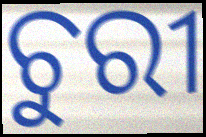
ଚୁରୀ